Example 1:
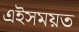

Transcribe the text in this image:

এইসময়ত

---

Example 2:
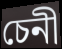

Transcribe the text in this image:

চেনী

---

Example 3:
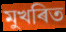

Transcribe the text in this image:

মুখৰিত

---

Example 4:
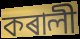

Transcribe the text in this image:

কৰালী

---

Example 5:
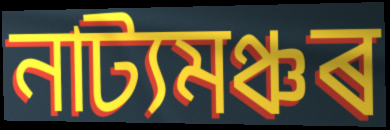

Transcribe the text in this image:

নাট্যমঞ্চৰ